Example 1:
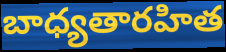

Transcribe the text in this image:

బాధ్యతారహిత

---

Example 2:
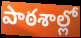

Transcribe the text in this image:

పాఠశాల్లో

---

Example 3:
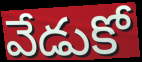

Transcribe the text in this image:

వేడుకో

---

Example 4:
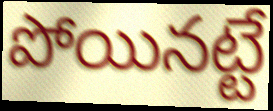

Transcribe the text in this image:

పోయినట్టే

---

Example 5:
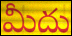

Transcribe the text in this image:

మీదు